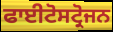
ਫਾਈਟੋਸਟ੍ਰੋਜਨ